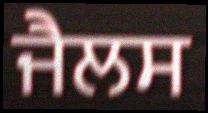
ਜੈਲਸ